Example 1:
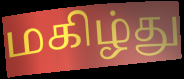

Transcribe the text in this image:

மகிழ்து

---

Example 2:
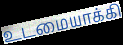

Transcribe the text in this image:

உடமையாக்கி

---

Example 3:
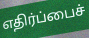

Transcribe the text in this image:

எதிர்ப்பைச்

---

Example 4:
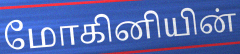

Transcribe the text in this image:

மோகினியின்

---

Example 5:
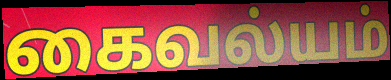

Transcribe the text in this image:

கைவல்யம்